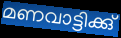
മണവാട്ടിക്കു്